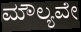
ಮೌಲ್ಯವೇ